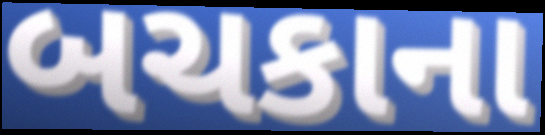
બચકાના